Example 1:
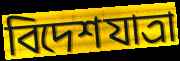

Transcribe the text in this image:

বিদেশযাত্রা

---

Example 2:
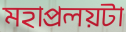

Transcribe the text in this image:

মহাপ্রলয়টা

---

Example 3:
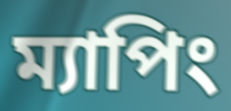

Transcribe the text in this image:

ম্যাপিং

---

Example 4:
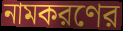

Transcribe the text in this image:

নামকরণের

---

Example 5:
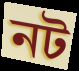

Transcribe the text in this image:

নট